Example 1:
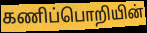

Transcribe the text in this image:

கணிப்பொறியின்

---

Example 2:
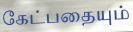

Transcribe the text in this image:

கேட்பதையும்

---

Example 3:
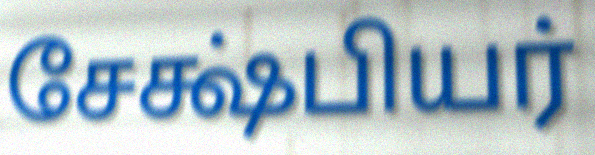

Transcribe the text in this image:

சேக்ஷ்பியர்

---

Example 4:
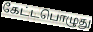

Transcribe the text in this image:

கேட்டபொழுது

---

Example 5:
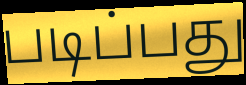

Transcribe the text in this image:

படிப்பது